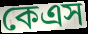
কেএস